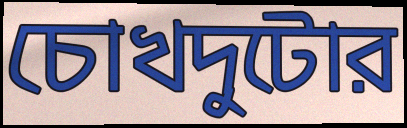
চোখদুটোর